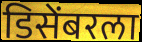
डिसेंबरला